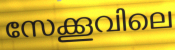
സേക്കൂവിലെ